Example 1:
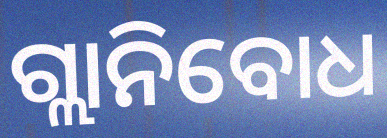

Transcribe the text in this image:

ଗ୍ଲାନିବୋଧ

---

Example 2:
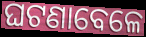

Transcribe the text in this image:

ଘଟଣାବେଳେ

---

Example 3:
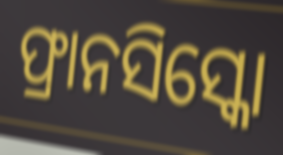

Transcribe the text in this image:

ଫ୍ରାନସିସ୍କୋ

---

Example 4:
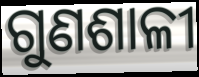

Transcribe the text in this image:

ଗୁଣଶାଳୀ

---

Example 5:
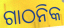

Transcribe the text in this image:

ଗାଠନିକ